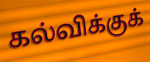
கல்விக்குக்